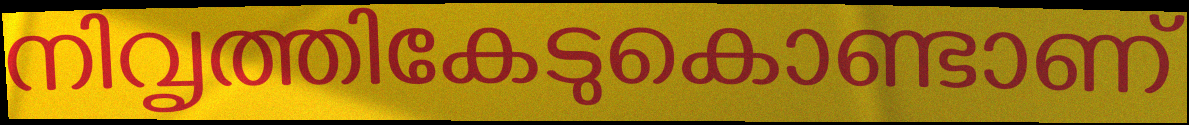
നിവൃത്തികേടുകൊണ്ടാണ്